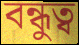
বন্ধুত্ব